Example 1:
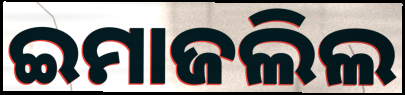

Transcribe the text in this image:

ଇମାଜଲିଲ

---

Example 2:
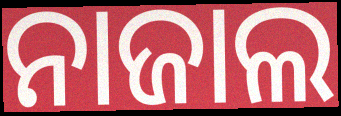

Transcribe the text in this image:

ନାଜାଲ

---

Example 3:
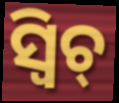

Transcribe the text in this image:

ସ୍ଵିଚ୍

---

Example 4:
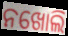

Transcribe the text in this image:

ନଖୋଲି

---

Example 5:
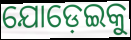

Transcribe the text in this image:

ଯୋଡ଼େଇକୁ